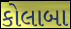
કોલાબા